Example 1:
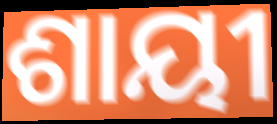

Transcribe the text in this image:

ଶାୟୀ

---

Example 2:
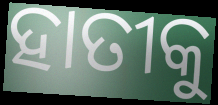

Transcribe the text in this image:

ହାତୀକୁ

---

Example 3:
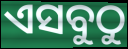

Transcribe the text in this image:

ଏସବୁଠୁ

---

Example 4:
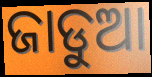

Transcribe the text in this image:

ଜାଡୁଆ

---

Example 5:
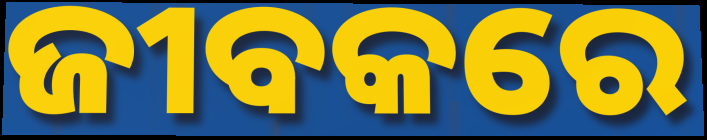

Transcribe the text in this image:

ଜୀବକରେ